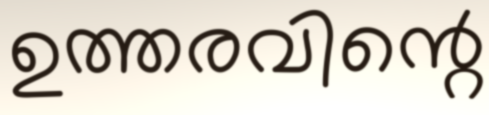
ഉത്തരവിന്റെ